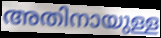
അതിനായുള്ള